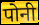
पोनी